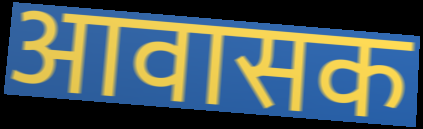
आवासक